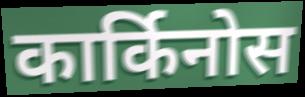
कार्किनोस